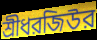
শ্রীধরজিউর